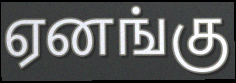
ஏனங்கு